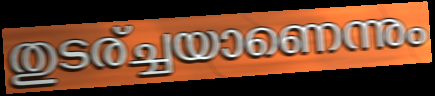
തുടര്ച്ചയാണെന്നും